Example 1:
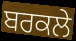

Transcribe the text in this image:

ਬਰਕਲੇ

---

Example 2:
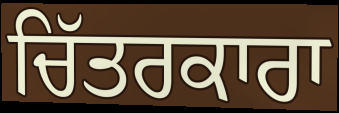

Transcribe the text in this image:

ਚਿੱਤਰਕਾਰਾ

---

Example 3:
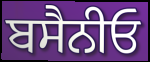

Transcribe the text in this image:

ਬਸੈਨੀਓ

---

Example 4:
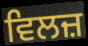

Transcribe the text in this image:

ਵਿਲਜ਼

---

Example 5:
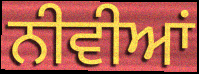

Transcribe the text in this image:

ਨੀਵੀਆਂ